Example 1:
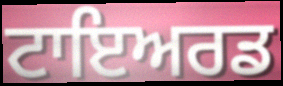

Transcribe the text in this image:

ਟਾਇਅਰਡ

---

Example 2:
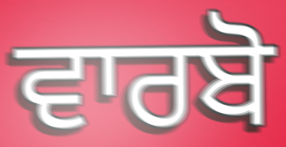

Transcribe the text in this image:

ਵਾਰਬੋ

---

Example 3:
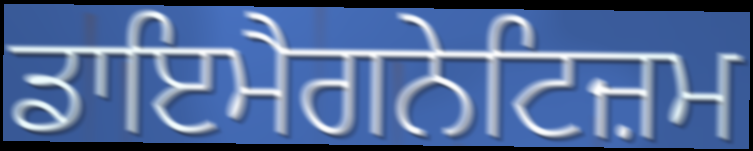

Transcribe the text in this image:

ਡਾਇਮੈਗਨੇਟਿਜ਼ਮ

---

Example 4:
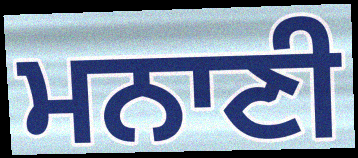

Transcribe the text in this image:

ਮਨਾਣੀ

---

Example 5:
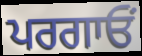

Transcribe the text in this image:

ਪਰਗਾਓਂ